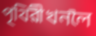
পৃথিৱীখনলৈ